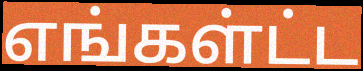
எங்கள்ட்ட